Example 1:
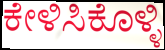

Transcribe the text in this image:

ಕೇಳಿಸಿಕೊಳ್ಳಿ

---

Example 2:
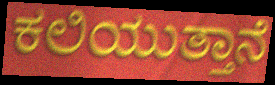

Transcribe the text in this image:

ಕಲಿಯುತ್ತಾನೆ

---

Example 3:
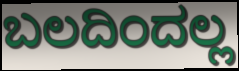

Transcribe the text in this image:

ಬಲದಿಂದಲ್ಲ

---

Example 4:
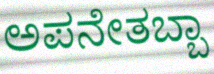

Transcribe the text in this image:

ಅಪನೇತಬ್ಬಾ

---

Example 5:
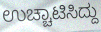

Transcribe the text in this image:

ಉಚ್ಚಾಟಿಸಿದ್ದು